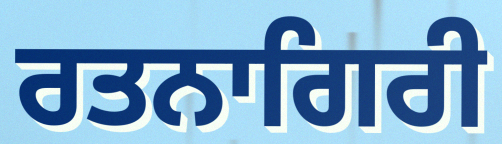
ਰਤਨਾਗਿਰੀ